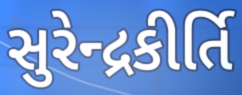
સુરેન્દ્રકીર્તિ